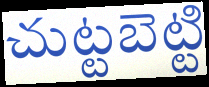
చుట్టబెట్టి